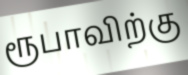
ரூபாவிற்கு